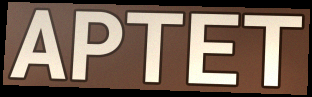
APTET